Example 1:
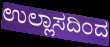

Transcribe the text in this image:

ಉಲ್ಲಾಸದಿಂದ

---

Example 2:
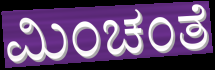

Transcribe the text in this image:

ಮಿಂಚಂತೆ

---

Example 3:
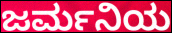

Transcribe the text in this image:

ಜರ್ಮನಿಯ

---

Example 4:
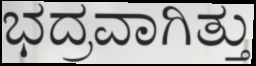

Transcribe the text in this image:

ಭದ್ರವಾಗಿತ್ತು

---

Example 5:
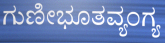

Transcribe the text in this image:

ಗುಣೀಭೂತವ್ಯಂಗ್ಯ